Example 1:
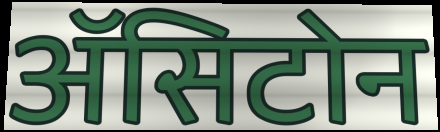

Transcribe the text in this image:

ॲसिटोन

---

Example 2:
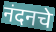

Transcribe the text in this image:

नंदनचे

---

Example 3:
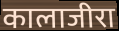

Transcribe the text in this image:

कालाजीरा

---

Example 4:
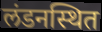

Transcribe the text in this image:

लंडनस्थित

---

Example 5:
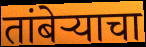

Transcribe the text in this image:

तांबेऱ्याचा